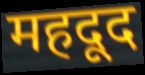
महदूद